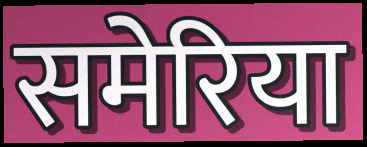
समेरिया